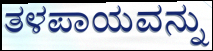
ತಳಪಾಯವನ್ನು